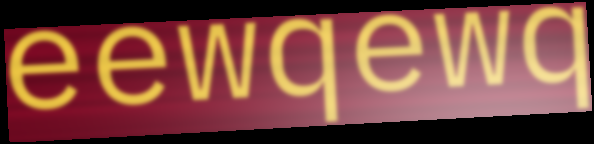
eewqewq